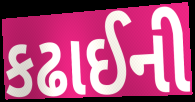
કઢાઈની